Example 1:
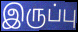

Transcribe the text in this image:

இருப்பு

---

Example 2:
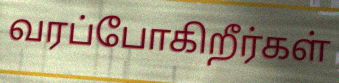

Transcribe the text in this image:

வரப்போகிறீர்கள்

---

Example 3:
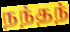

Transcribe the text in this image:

நந்தந்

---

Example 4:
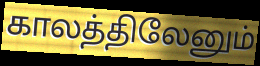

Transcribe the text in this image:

காலத்திலேனும்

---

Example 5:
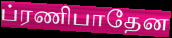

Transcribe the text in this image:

ப்ரணிபாதேன